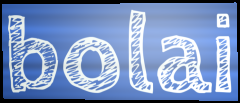
bolai